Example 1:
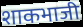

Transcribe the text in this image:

शाकभाजी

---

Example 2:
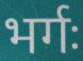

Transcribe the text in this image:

भर्गः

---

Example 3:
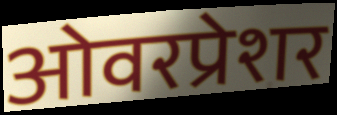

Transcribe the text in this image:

ओवरप्रेशर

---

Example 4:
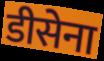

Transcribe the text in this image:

डीसेना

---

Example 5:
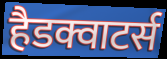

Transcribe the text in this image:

हैडक्वाटर्स